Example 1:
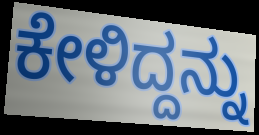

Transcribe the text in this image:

ಕೇಳಿದ್ದನ್ನು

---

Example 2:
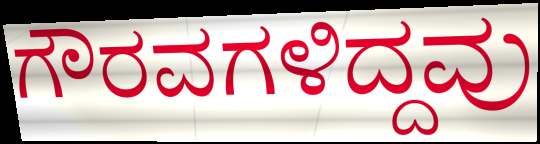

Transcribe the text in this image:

ಗೌರವಗಳಿದ್ದವು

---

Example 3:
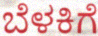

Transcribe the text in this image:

ಬೆಳಕಿಗೆ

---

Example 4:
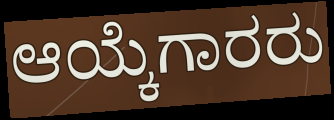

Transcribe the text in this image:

ಆಯ್ಕೆಗಾರರು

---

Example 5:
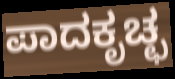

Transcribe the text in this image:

ಪಾದಕೃಚ್ಛ